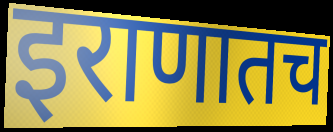
इराणातच